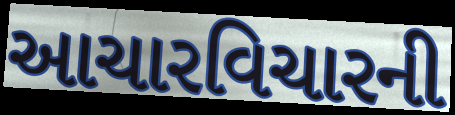
આચારવિચારની